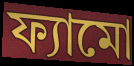
ফ্যামো